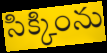
సిక్కింను